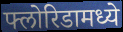
फ्लोरिडामध्ये